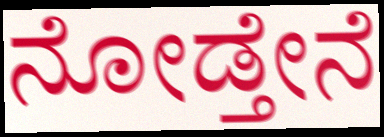
ನೋಡ್ತೇನೆ